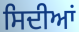
ਸਿਦੀਆਂ